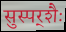
सुस्पर्शैः